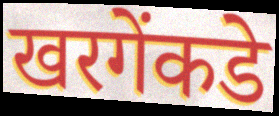
खरगेंकडे